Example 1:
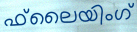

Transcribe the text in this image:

ഫ്‌ലൈയിംഗ്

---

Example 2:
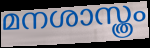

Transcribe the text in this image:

മനശാസ്ത്രം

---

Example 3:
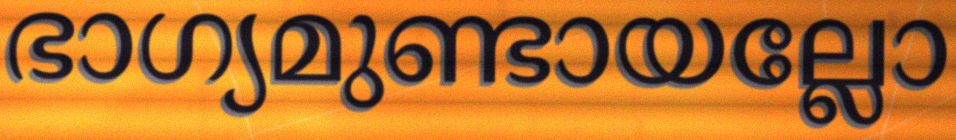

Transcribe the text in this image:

ഭാഗ്യമുണ്ടായല്ലോ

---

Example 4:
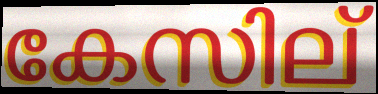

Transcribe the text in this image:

കേസില്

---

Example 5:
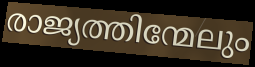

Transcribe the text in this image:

രാജ്യത്തിന്മേലും